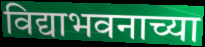
विद्याभवनाच्या